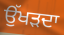
ਉੱਖੜਦਾ